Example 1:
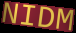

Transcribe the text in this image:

NIDM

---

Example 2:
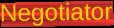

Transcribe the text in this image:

Negotiator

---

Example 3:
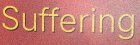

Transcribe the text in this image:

Suffering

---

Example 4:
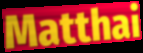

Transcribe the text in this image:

Matthai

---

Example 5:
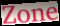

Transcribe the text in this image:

Zone